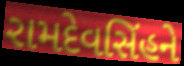
રામદેવસિંહને